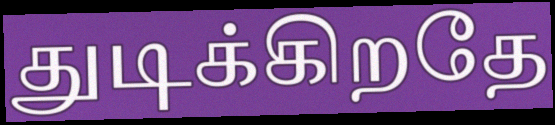
துடிக்கிறதே